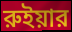
রুইয়ার